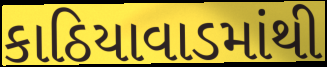
કાઠિયાવાડમાંથી